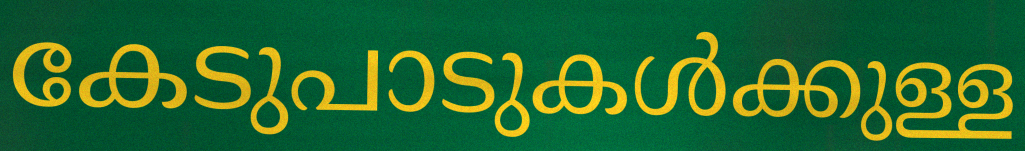
കേടുപാടുകൾക്കുള്ള